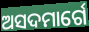
ଅସଦମାର୍ଗେ